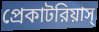
প্রেকাটরিয়াস্